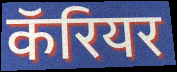
कॅरियर